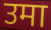
उमा